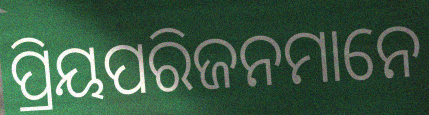
ପ୍ରିୟପରିଜନମାନେ